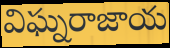
విఘ్నరాజాయ